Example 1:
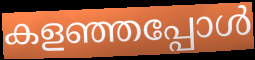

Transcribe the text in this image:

കളഞ്ഞപ്പോൾ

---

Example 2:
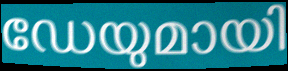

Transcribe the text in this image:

ഡേയുമായി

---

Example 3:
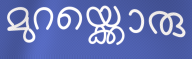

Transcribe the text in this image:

മുറയ്ക്കൊരു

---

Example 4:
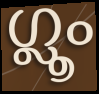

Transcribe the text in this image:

ഗ്ലൂം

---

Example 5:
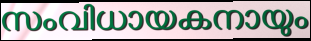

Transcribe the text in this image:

സംവിധായകനായും